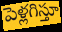
పెళ్లగిస్తూ